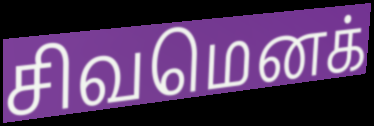
சிவமெனக்